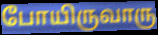
போயிருவாரு